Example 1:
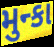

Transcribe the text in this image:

મુન્કા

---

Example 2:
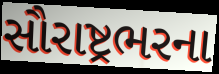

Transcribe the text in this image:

સૌરાષ્ટ્રભરના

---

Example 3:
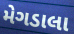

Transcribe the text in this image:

મેગડાલા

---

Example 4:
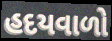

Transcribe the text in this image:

હદયવાળો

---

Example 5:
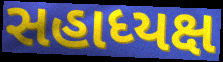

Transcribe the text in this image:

સહાધ્યક્ષ